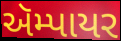
ઍમ્પાયર